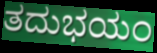
ತದುಭಯಂ